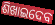
ଶିଖାଇଦେବ